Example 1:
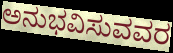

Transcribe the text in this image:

ಅನುಭವಿಸುವವರ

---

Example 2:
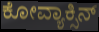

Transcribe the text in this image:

ಕೋವ್ಯಾಕ್ಸಿನ್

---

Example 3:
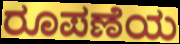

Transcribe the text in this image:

ರೂಪಣೆಯ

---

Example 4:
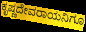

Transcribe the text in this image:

ಕೃಷ್ಣದೇವರಾಯನಿಗೂ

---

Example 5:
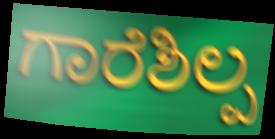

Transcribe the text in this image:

ಗಾರೆಶಿಲ್ಪ